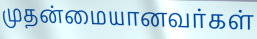
முதன்மையானவர்கள்